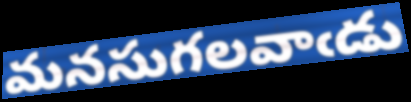
మనసుగలవాఁడు